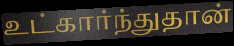
உட்கார்ந்துதான்